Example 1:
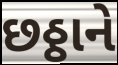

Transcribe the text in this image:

છઠ્ઠાને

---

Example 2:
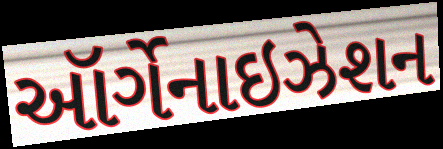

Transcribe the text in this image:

ઑર્ગેનાઇઝેશન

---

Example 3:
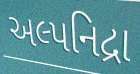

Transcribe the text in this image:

અલ્પનિદ્રા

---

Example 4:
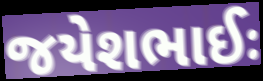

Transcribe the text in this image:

જયેશભાઈઃ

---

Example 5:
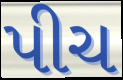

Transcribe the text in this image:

પીચ